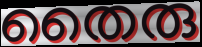
തൈരു